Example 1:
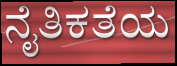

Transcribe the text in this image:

ನೈತಿಕತೆಯ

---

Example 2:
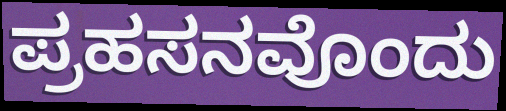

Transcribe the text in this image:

ಪ್ರಹಸನವೊಂದು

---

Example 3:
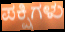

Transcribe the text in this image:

ಪಕ್ಷಿಗಳು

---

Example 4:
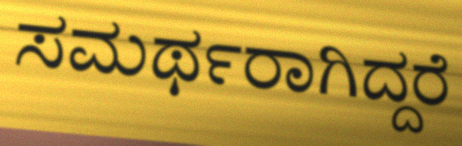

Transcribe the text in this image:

ಸಮರ್ಥರಾಗಿದ್ದರೆ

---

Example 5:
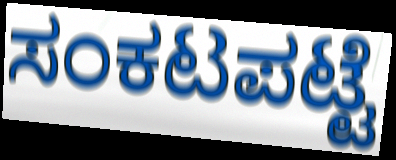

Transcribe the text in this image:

ಸಂಕಟಪಟ್ಟೆ